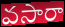
వసారా